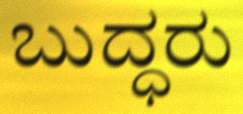
ಬುದ್ಧರು